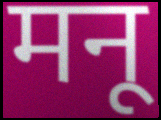
मनू